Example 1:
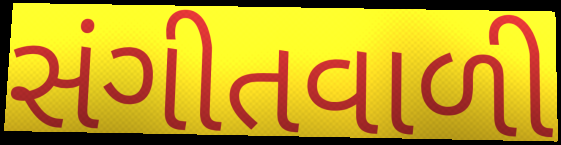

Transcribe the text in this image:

સંગીતવાળી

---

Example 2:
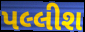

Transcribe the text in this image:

પલ્લીશ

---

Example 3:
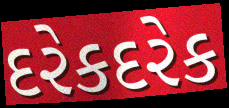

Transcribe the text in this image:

દરેકદરેક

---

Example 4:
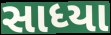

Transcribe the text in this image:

સાધ્યા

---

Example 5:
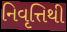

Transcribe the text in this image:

નિવૃત્તિથી